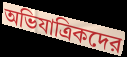
অভিযাত্রিকদের